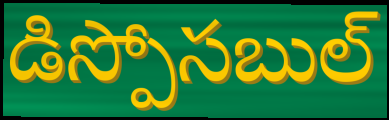
డిస్పోసబుల్